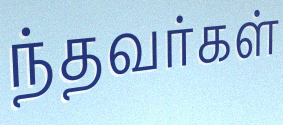
ந்தவர்கள்